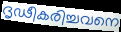
ദൃഢീകരിച്ചവനെ